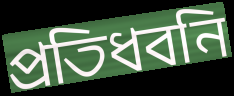
প্রতিধবনি